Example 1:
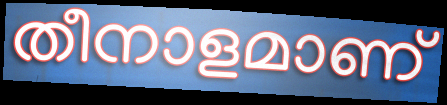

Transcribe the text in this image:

തീനാളമാണ്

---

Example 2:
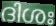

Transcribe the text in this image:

ദിശഃ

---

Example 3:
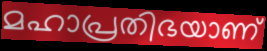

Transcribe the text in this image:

മഹാപ്രതിഭയാണ്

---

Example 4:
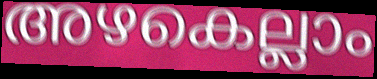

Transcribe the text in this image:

അഴകെല്ലാം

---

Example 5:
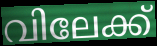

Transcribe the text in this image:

വിലേക്ക്